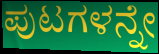
ಪುಟಗಳನ್ನೇ